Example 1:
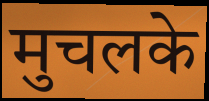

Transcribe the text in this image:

मुचलके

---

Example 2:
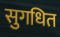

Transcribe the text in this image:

सुगधित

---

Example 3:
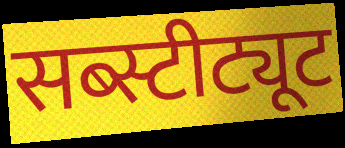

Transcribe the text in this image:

सब्स्टीट्यूट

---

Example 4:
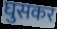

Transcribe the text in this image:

घुसकर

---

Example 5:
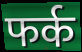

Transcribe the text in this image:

फर्क